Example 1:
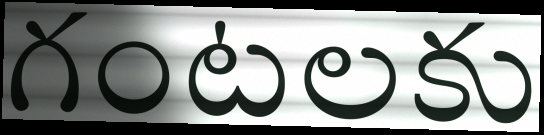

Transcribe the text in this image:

గంటలకు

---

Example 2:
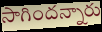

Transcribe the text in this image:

సాగిందన్నారు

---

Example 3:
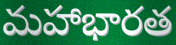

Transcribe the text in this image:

మహాభారత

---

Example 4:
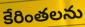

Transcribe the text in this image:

కేరింతలను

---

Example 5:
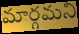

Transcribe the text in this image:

మార్గమని